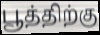
பூத்திற்கு